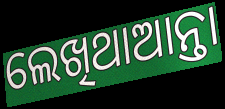
ଲେଖିଥାଆନ୍ତା